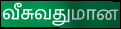
வீசுவதுமான